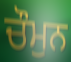
ਚੌਮੁਨ